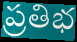
ప్రతిభ